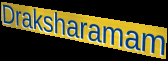
Draksharamam